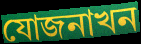
যোজনাখন